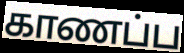
காணப்ப